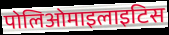
पोलिओमाइलाइटिस